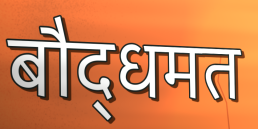
बौद्धमत